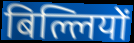
बिल्लियों